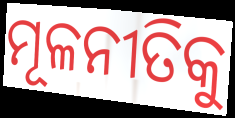
ମୂଳନୀତିକୁ